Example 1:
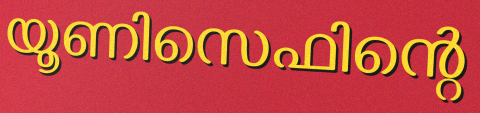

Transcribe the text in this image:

യൂണിസെഫിന്റെ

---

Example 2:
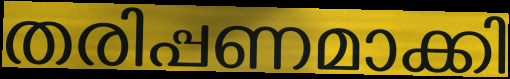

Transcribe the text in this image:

തരിപ്പണമാക്കി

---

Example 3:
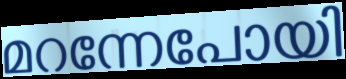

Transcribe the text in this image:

മറന്നേപോയി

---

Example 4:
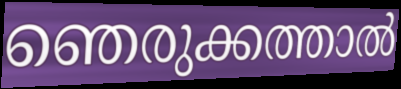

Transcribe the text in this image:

ഞെരുക്കത്താൽ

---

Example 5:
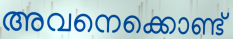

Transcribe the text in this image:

അവനെക്കൊണ്ട്